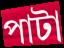
পাটা